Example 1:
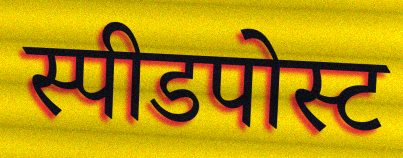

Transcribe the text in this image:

स्पीडपोस्ट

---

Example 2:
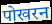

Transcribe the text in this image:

पोखरन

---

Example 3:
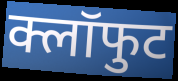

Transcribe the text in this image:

क्लॉफुट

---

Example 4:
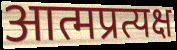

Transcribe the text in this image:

आत्मप्रत्यक्ष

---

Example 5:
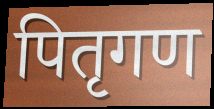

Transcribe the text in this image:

पितृगण